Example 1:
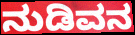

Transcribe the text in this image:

ನುಡಿವನ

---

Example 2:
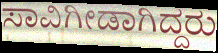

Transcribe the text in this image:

ಸಾವಿಗೀಡಾಗಿದ್ದರು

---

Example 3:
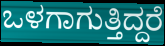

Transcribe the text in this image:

ಒಳಗಾಗುತ್ತಿದ್ದರೆ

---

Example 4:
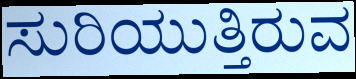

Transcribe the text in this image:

ಸುರಿಯುತ್ತಿರುವ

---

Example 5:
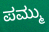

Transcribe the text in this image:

ಪಮ್ಮು